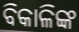
ବିକାଳିଙ୍କ